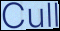
Cull